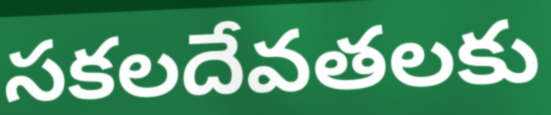
సకలదేవతలకు